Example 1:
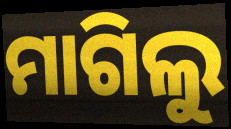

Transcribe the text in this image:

ମାଗିଲୁ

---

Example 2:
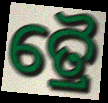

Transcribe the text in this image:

ତ୍ରୈ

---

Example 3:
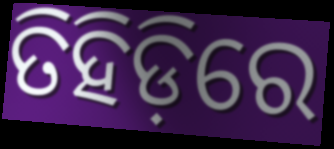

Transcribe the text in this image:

ତିହିଡ଼ିରେ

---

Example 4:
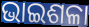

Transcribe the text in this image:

ଭାଇଶଳା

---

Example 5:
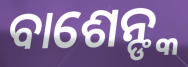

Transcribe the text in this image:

ବାଶେନ୍ଙ୍କ